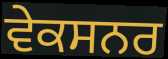
ਵੇਕਸਨਰ